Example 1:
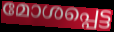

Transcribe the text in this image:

മോശപ്പെട്ട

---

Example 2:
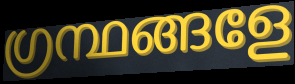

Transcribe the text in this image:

ഗ്രന്ഥങ്ങളേ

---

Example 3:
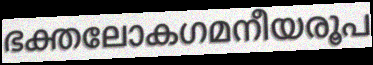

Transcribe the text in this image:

ഭക്തലോകഗമനീയരൂപ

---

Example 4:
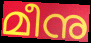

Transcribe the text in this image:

മീനു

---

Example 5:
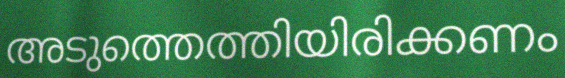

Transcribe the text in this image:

അടുത്തെത്തിയിരിക്കണം